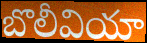
బొలీవియా